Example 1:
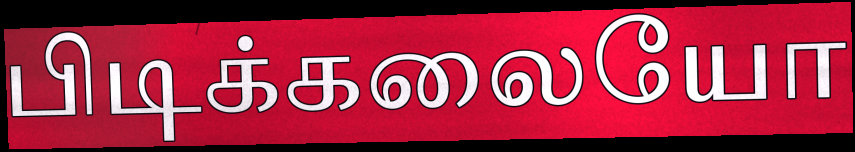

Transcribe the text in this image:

பிடிக்கலையோ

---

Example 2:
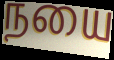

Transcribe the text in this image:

நயை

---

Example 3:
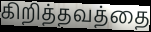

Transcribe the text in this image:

கிறித்தவத்தை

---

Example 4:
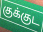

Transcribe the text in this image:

குக்குட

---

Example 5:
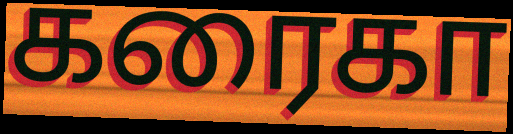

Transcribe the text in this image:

கரைகா